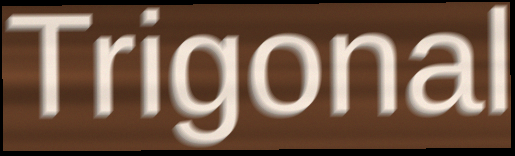
Trigonal